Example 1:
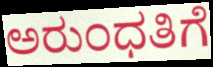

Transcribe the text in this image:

ಅರುಂಧತಿಗೆ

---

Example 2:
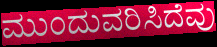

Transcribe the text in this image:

ಮುಂದುವರಿಸಿದೆವು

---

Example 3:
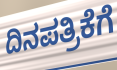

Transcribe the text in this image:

ದಿನಪತ್ರಿಕೆಗೆ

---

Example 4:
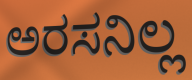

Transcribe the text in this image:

ಅರಸನಿಲ್ಲ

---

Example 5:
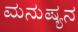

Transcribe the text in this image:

ಮನುಷ್ಯನ